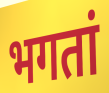
भगतां